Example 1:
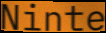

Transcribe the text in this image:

Ninte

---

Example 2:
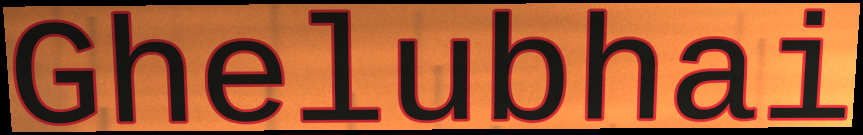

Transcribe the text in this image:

Ghelubhai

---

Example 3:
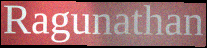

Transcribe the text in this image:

Ragunathan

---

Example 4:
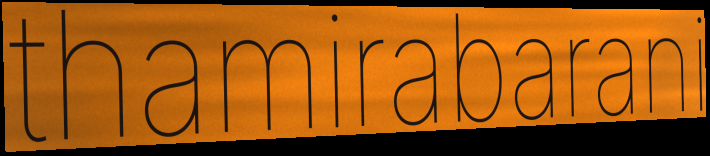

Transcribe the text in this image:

thamirabarani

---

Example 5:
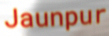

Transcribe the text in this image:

Jaunpur